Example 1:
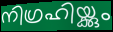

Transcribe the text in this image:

നിഗ്രഹിയ്ക്കും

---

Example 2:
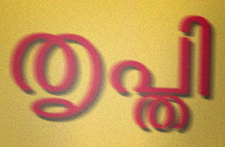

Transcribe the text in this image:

തൃപ്തി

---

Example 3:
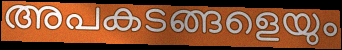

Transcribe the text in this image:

അപകടങ്ങളെയും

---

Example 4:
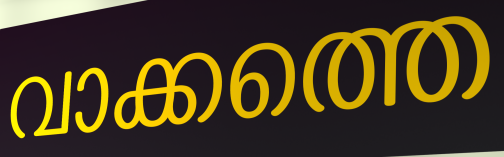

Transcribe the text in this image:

വാക്കത്തെ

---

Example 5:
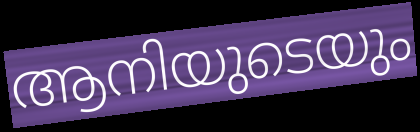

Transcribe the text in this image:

ആനിയുടെയും